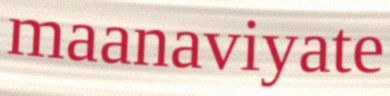
maanaviyate